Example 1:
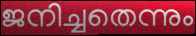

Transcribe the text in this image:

ജനിച്ചതെന്നും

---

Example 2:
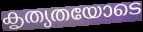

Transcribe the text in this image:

കൃത്യതയോടെ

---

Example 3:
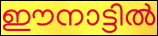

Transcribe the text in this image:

ഈനാട്ടിൽ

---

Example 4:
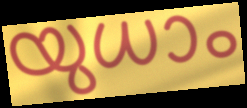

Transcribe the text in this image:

യുധാം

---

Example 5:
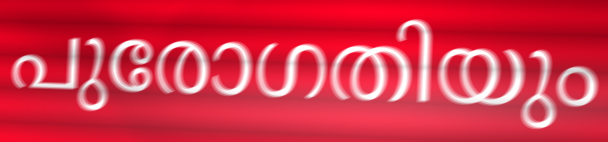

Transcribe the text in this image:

പുരോഗതിയും